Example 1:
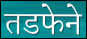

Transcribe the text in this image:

तडफेने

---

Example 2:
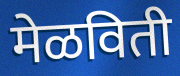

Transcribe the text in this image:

मेळविती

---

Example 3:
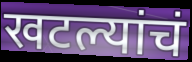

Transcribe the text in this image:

खटल्यांचं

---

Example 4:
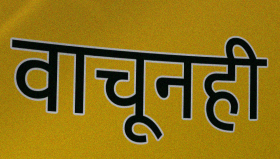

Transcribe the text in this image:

वाचूनही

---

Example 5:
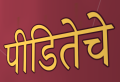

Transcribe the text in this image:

पीडितेचे